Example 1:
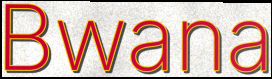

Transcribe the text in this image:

Bwana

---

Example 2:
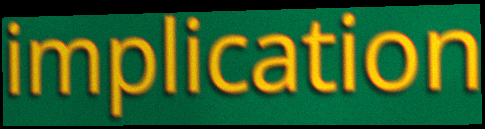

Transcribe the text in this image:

implication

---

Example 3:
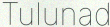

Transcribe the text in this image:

Tulunad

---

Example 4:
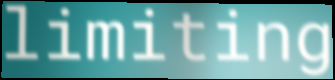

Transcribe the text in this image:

limiting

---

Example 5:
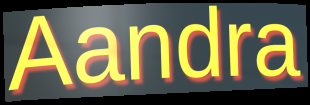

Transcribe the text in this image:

Aandra